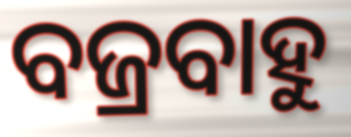
ବଜ୍ରବାହୁ